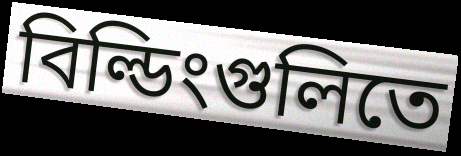
বিল্ডিংগুলিতে